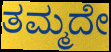
ತಮ್ಮದೇ